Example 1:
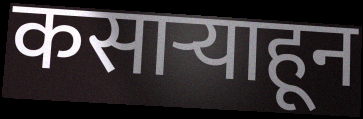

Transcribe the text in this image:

कसाऱ्याहून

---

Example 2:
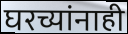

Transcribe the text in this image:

घरच्यांनाही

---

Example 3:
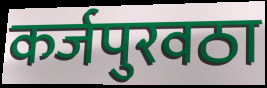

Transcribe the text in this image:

कर्जपुरवठा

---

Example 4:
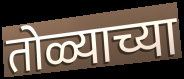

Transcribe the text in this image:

तोळ्याच्या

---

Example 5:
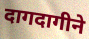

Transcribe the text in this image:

दागदागीने